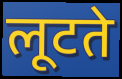
लूटते